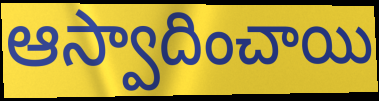
ఆస్వాదించాయి